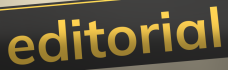
editorial